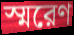
স্মরেণ